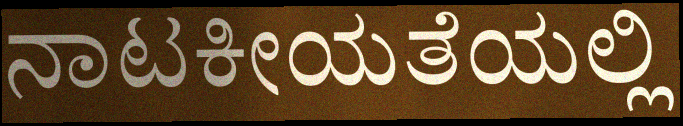
ನಾಟಕೀಯತೆಯಲ್ಲಿ